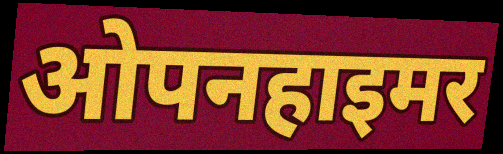
ओपनहाइमर